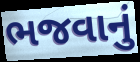
ભજવાનું